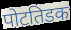
पोटतिडक